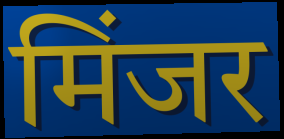
मिंजर